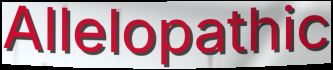
Allelopathic